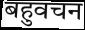
बहुवचन